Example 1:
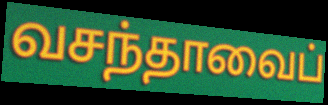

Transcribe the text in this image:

வசந்தாவைப்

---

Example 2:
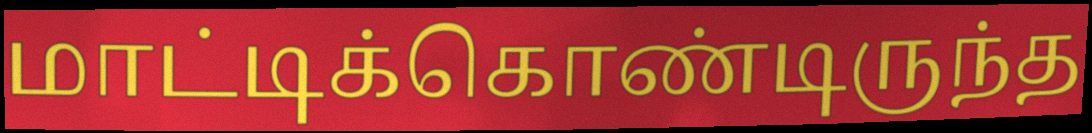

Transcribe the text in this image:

மாட்டிக்கொண்டிருந்த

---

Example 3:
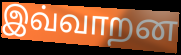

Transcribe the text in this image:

இவ்வாறன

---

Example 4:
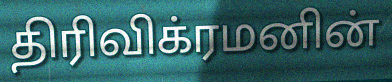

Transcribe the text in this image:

திரிவிக்ரமனின்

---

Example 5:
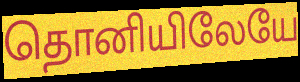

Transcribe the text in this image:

தொனியிலேயே